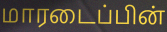
மாரடைப்பின்